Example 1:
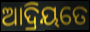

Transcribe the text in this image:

ଆଦ୍ରିୟତେ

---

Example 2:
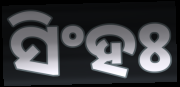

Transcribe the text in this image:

ସିଂହଃ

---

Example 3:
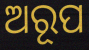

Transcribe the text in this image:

ଅରୂପ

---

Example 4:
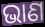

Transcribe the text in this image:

ଭାଣ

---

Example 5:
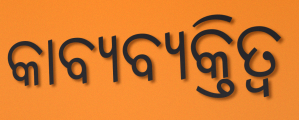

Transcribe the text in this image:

କାବ୍ୟବ୍ୟକ୍ତିତ୍ୱ